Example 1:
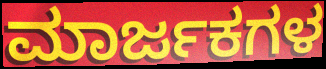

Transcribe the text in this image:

ಮಾರ್ಜಕಗಳ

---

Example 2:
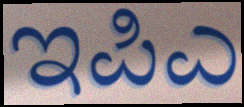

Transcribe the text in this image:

ಇಪಿಎ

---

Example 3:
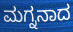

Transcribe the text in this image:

ಮಗ್ನನಾದ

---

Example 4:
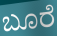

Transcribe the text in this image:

ಬೂರೆ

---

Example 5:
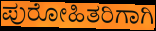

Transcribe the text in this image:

ಪುರೋಹಿತರಿಗಾಗಿ